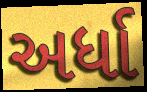
અર્ધા